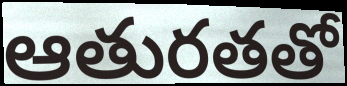
ఆతురతతో